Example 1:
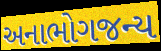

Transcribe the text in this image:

અનાભોગજન્ય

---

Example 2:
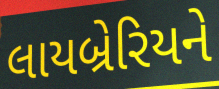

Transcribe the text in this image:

લાયબ્રેરિયને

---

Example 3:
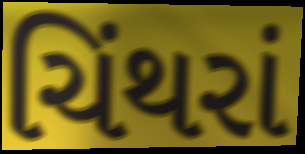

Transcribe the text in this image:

ચિંથરાં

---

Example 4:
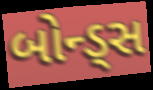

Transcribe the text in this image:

બોન્ડ્સ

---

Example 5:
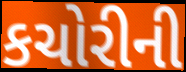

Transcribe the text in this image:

કચોરીની